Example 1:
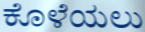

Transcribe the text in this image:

ಕೊಳೆಯಲು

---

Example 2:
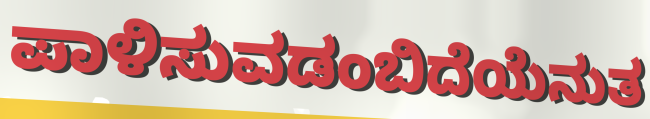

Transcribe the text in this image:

ಪಾಳಿಸುವಡಂಬಿದೆಯೆನುತ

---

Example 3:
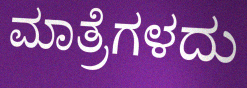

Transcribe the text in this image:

ಮಾತ್ರೆಗಳದು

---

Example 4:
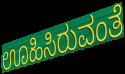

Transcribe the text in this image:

ಊಹಿಸಿರುವಂತೆ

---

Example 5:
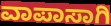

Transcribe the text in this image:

ವಾಪಾಸಾಗಿ